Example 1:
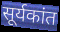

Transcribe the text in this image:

सूर्यकांत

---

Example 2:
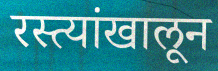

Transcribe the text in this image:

रस्त्यांखालून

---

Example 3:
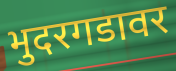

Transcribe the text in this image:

भुदरगडावर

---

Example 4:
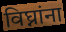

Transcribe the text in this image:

विघ्नांना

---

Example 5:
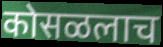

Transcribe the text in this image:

कोसळलाच